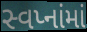
સ્વપ્નાંમાં